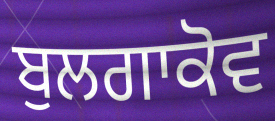
ਬੁਲਗਾਕੋਵ